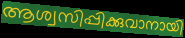
ആശ്വസിപ്പിക്കുവാനായി